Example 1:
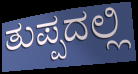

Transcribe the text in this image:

ತುಪ್ಪದಲ್ಲಿ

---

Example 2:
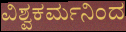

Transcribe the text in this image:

ವಿಶ್ವಕರ್ಮನಿಂದ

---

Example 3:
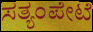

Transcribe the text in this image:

ಸತ್ಯಂಪೇಟೆ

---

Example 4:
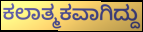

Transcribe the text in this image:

ಕಲಾತ್ಮಕವಾಗಿದ್ದು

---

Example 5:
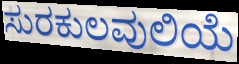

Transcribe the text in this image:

ಸುರಕುಲವುಲಿಯೆ